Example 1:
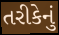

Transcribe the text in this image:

તરીકેનું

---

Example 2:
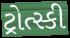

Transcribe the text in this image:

ટ્રોત્સ્કી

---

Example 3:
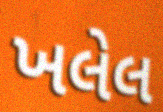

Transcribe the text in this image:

ખલેલ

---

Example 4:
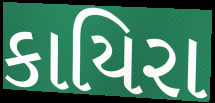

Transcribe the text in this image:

કાયિરા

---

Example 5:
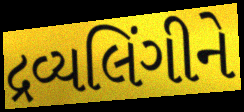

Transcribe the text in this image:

દ્રવ્યલિંગીને